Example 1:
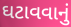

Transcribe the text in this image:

ઘટાવવાનું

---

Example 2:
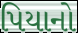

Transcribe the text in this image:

પિયાનો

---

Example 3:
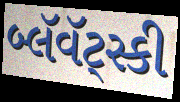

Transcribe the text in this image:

બ્લૅવૅટ્સ્કી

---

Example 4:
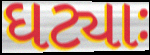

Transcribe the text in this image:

ઘટ્યાઃ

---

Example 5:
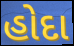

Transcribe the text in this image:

હોદા